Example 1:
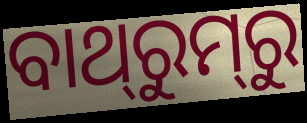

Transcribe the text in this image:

ବାଥ୍‌ରୁମ୍‌ରୁ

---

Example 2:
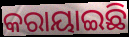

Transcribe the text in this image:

କରାୟାଇଛି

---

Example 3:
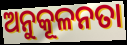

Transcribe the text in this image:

ଅନୁକୂଳନତା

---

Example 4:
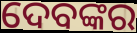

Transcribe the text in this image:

ଦେବଙ୍କର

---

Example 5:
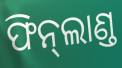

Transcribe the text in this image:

ଫିନ୍‌ଲାଣ୍ଡ